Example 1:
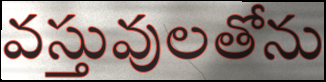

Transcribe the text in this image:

వస్తువులతోను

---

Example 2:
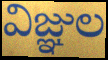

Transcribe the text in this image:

విజ్ఞుల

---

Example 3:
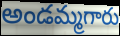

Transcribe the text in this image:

అండమ్మగారు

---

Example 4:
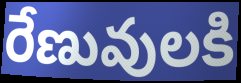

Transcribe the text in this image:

రేణువులకి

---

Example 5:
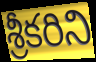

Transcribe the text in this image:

శ్రీకరిని